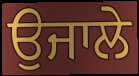
ਉਜਾਲੇ